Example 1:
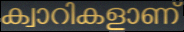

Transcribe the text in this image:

ക്വാറികളാണ്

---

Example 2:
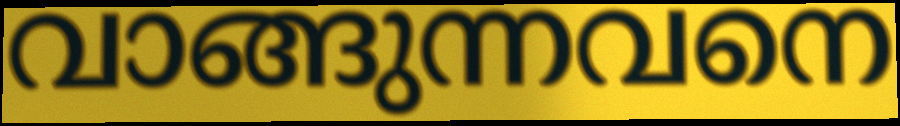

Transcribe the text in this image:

വാങ്ങുന്നവനെ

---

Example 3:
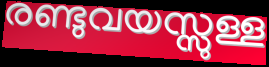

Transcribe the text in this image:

രണ്ടുവയസ്സുള്ള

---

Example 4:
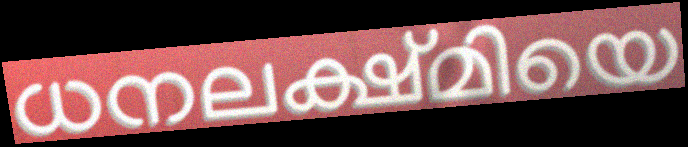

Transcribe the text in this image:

ധനലക്ഷ്മിയെ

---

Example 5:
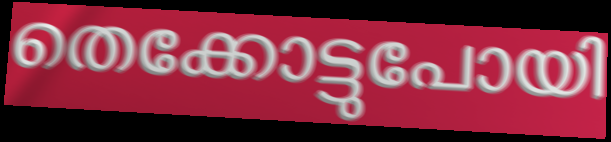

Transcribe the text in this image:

തെക്കോട്ടുപോയി